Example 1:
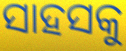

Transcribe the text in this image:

ସାହସକୁ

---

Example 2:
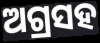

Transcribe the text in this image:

ଅଗ୍ରସହ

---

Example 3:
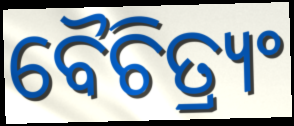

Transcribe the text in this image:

ବୈଚିତ୍ର୍ୟଂ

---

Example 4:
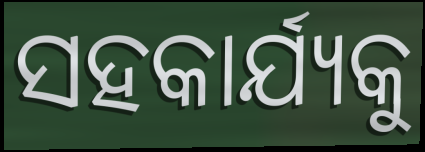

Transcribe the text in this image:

ସହକାର୍ଯ୍ୟକୁ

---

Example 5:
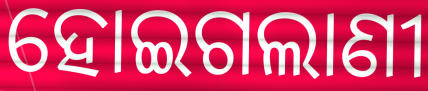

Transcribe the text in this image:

ହୋଇଗଲାଣୀ